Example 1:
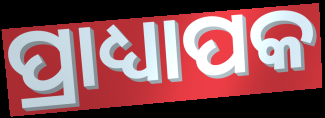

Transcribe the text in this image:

ପ୍ରାଧ୍ୟାପକ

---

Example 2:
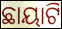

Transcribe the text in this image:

ଛାୟାଟି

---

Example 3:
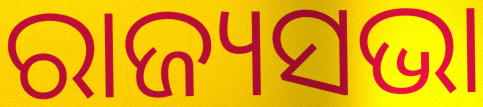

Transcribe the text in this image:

ରାଜ୍ୟସଭା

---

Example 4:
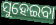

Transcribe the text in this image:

ସୁହେଇବା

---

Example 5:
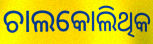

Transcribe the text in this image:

ଚାଲକୋଲିଥିକ